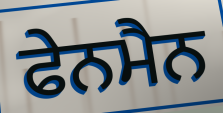
ਫੇਨਮੈਨ